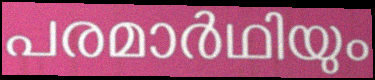
പരമാർഥിയും